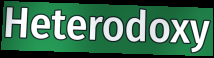
Heterodoxy